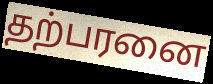
தற்பரனை